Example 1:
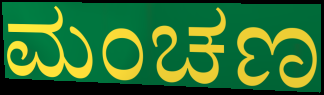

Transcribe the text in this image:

ಮಂಚಣ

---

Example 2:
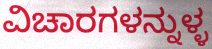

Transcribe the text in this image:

ವಿಚಾರಗಳನ್ನುಳ್ಳ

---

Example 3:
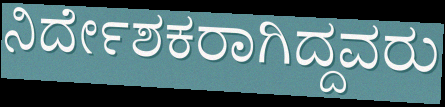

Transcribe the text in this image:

ನಿರ್ದೇಶಕರಾಗಿದ್ದವರು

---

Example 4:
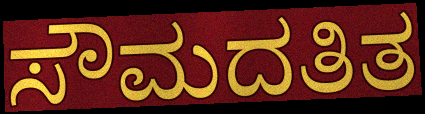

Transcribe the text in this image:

ಸೌಮದತಿತ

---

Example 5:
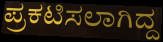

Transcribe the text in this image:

ಪ್ರಕಟಿಸಲಾಗಿದ್ದ